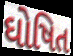
ઘોષિત